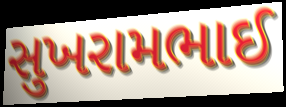
સુખરામભાઈ